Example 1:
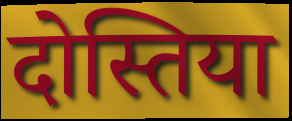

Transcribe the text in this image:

दोस्तिया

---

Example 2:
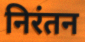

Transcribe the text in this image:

निरंतन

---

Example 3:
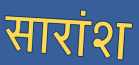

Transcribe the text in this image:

सारांश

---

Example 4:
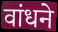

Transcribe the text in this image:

वांधने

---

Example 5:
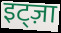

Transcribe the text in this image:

इट्ज़ा